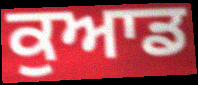
ਕੁਆਡ